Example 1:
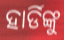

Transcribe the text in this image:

ହାର୍ଡିଙ୍କୁ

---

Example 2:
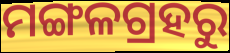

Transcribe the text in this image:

ମଙ୍ଗଳଗ୍ରହରୁ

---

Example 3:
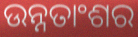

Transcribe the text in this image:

ଉନ୍ନତାଂଶର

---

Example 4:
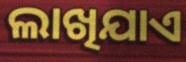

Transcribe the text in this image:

ଲାଖିଯାଏ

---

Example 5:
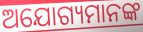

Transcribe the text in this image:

ଅଯୋଗ୍ୟମାନଙ୍କ